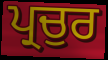
ਪ੍ਰਚੁਰ